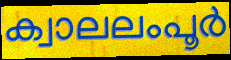
ക്വാലലംപൂർ